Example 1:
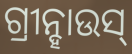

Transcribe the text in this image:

ଗ୍ରୀନ୍ହାଉସ୍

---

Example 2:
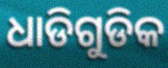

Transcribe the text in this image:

ଧାଡିଗୁଡିକ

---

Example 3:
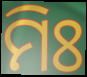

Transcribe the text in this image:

ମିଃ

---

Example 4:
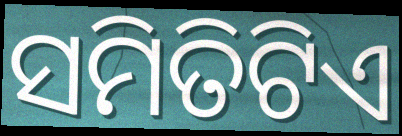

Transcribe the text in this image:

ସମିତିଟିଏ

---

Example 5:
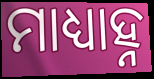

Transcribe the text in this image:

ମାଧ୍ୟାହ୍ନ